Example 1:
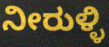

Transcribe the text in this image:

ನೀರುಳ್ಳಿ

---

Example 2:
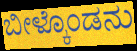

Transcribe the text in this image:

ಬೀಳ್ಕೊಂಡನು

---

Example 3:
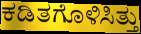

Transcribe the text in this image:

ಕಡಿತಗೊಳಿಸಿತ್ತು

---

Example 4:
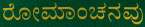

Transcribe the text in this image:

ರೋಮಾಂಚನವು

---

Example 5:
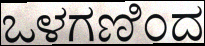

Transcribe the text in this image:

ಒಳಗಣಿಂದ